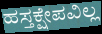
ಹಸ್ತಕ್ಷೇಪವಿಲ್ಲ